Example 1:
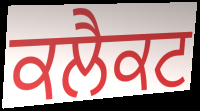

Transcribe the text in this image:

ਕਲੈਕਟ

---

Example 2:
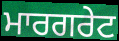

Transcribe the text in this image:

ਮਾਰਗਰੇਟ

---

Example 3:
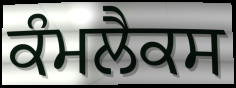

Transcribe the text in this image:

ਕੰਮਲੈਕਸ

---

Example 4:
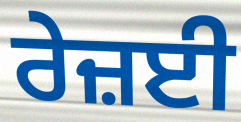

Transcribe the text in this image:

ਰੇਜ਼ਈ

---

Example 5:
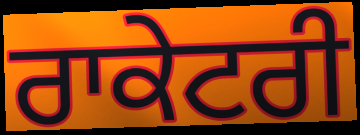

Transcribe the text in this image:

ਰਾਕੇਟਰੀ